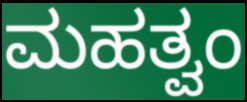
ಮಹತ್ವಂ